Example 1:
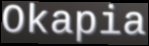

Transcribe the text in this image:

Okapia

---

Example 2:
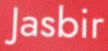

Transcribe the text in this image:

Jasbir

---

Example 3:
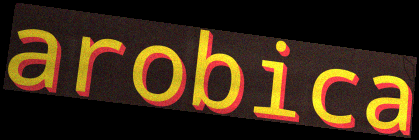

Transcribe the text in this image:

arobica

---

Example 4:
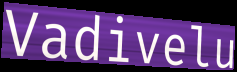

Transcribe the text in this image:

Vadivelu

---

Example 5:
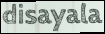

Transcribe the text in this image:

disayala